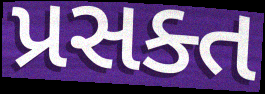
પ્રસક્ત